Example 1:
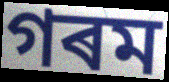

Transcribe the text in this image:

গৰম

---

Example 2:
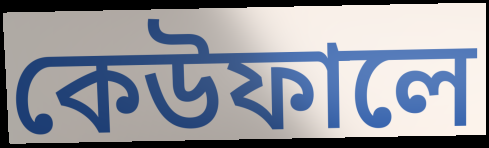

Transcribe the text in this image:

কেউফালে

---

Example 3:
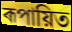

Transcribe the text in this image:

ৰূপায়িত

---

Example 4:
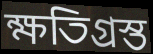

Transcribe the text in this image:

ক্ষতিগ্ৰস্ত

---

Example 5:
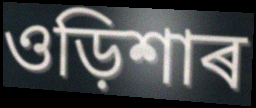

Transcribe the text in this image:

ওড়িশাৰ